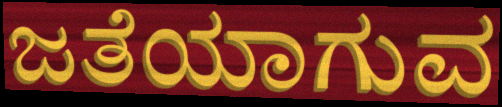
ಜತೆಯಾಗುವ